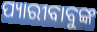
ପ୍ୟାରୀବାବୁଙ୍କ